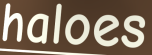
haloes